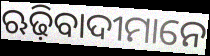
ଋଢ଼ିବାଦୀମାନେ